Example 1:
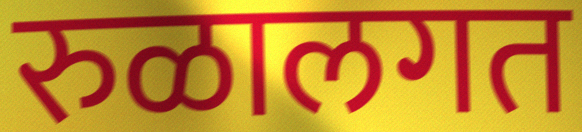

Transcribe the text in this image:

रुळालगत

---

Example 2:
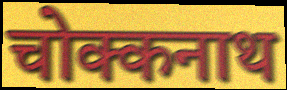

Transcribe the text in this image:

चोक्कनाथ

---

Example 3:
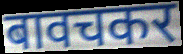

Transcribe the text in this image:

बावचकर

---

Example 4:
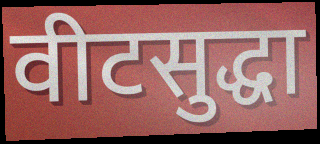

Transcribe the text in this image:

वीटसुद्धा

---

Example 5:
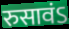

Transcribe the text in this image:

रुसावंऽ